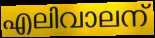
എലിവാലന്